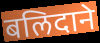
बलिदाने